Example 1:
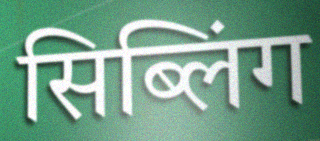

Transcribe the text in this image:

सिब्लिंग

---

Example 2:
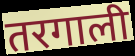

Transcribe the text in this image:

तरगाली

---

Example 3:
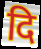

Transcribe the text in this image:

दि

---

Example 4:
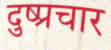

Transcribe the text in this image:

दुष्‍प्रचार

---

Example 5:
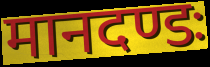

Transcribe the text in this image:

मानदण्डः